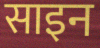
साइन